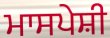
ਮਾਸਪੇਸ਼ੀ